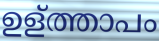
ഉള്ത്താപം